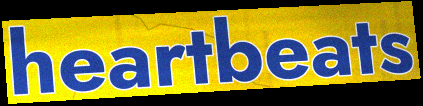
heartbeats